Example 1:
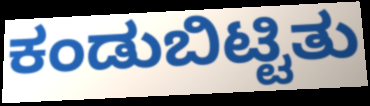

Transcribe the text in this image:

ಕಂಡುಬಿಟ್ಟಿತು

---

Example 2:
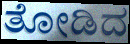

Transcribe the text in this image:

ತೋಡಿದ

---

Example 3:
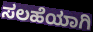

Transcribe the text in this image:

ಸಲಹೆಯಾಗಿ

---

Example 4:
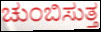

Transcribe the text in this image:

ಚುಂಬಿಸುತ್ತ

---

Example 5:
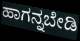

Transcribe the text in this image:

ಹಾಗನ್ನಬೇಡಿ